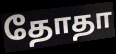
தோதா